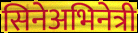
सिनेअभिनेत्री